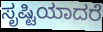
ಸೃಷ್ಟಿಯಾದರೆ